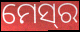
ମେସ୍‍ର